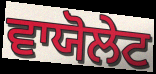
ਵਾਯੋਲੇਟ